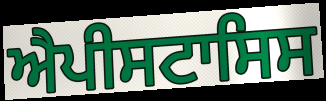
ਐਪੀਸਟਾਸਿਸ